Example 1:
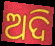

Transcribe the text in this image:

ଅଦି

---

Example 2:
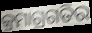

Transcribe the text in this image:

କ୍ରମାଗ୍ରଗତିର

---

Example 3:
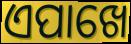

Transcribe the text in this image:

ଏପାଖେ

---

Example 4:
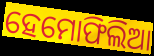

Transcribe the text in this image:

ହେମୋଫିଲିଆ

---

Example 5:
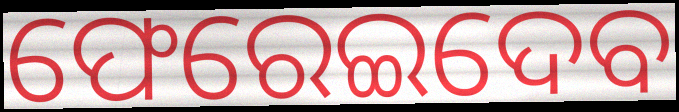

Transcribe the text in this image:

ଫେରେଇଦେବ